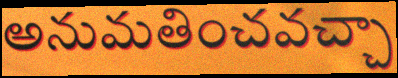
అనుమతించవచ్చా